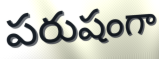
పరుషంగా